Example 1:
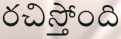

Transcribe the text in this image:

రచిస్తోంది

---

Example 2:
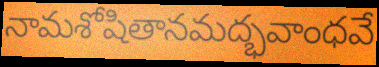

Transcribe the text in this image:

నామశోషితానమద్భవాంధవే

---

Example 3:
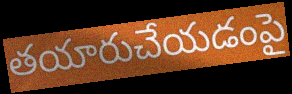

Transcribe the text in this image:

తయారుచేయడంపై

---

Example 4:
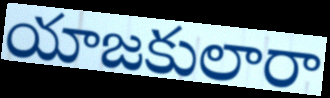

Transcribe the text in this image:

యాజకులారా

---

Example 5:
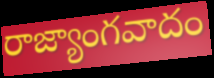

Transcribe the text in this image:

రాజ్యాంగవాదం